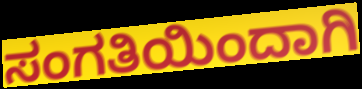
ಸಂಗತಿಯಿಂದಾಗಿ